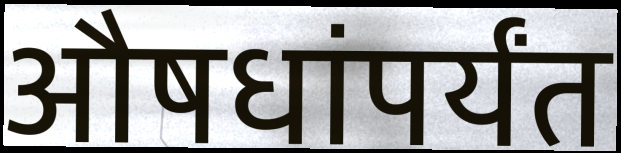
औषधांपर्यंत